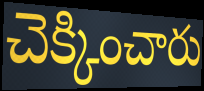
చెక్కించారు